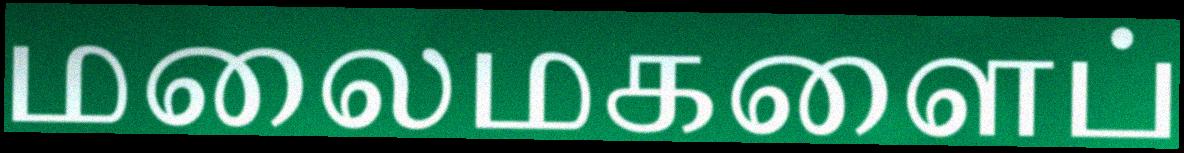
மலைமகளைப்